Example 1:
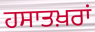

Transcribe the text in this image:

ਹਸਾਤਖ਼ਰਾਂ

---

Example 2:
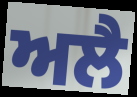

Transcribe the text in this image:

ਅਲੈ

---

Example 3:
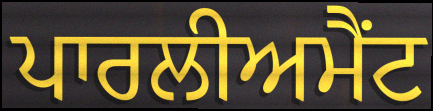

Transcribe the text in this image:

ਪਾਰਲੀਅਮੈਂਟ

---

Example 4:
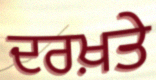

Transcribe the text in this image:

ਦਰਖ਼ਤੇ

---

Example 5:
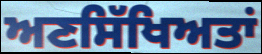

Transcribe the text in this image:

ਅਣਸਿੱਖਿਅਤਾਂ